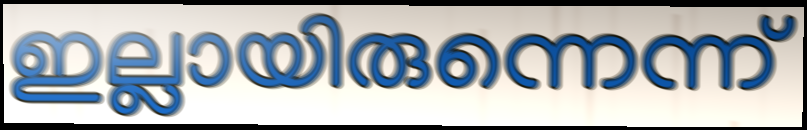
ഇല്ലായിരുന്നെന്ന്